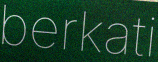
berkati